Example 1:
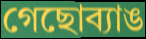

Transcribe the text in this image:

গেছোব্যাঙ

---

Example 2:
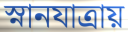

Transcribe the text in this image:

স্নানযাত্রায়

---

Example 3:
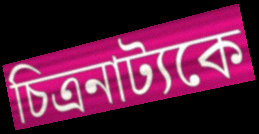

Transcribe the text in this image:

চিত্রনাট্যকে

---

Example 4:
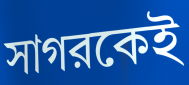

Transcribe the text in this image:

সাগরকেই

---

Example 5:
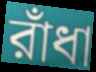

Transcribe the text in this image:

রাঁধা